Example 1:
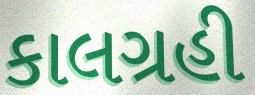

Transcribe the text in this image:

કાલગ્રહી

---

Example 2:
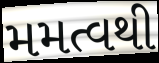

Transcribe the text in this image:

મમત્વથી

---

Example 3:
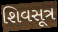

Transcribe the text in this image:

શિવસૂત્ર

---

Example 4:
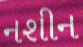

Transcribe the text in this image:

નશીન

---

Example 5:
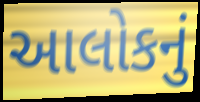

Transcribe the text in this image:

આલોકનું